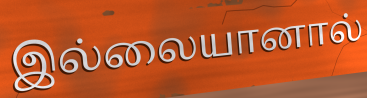
இல்லையானால்